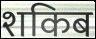
शकिब